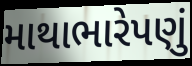
માથાભારેપણું